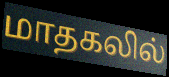
மாதகலில்